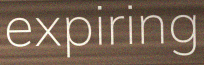
expiring